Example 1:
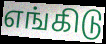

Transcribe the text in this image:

எங்கிடு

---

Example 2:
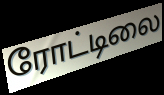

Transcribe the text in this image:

ரோட்டிலை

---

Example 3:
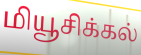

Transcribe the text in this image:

மியூசிக்கல்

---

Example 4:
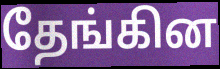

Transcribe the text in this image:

தேங்கின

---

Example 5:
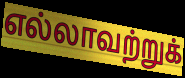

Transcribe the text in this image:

எல்லாவற்றுக்